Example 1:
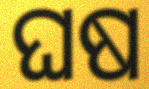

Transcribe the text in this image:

ଘଷ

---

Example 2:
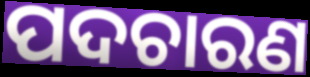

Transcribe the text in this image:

ପଦଚାରଣ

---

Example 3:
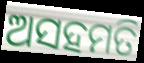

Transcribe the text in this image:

ଅସହମତି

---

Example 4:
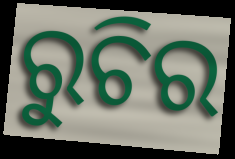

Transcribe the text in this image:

ରୁଚିର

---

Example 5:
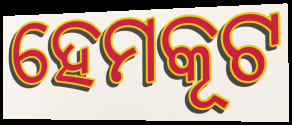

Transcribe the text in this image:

ହେମକୂଟ